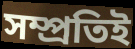
সম্প্রতিই